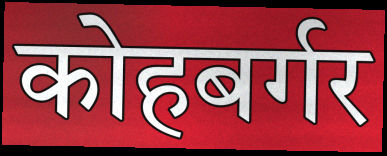
कोहबर्गर